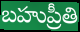
బహుప్రీతి